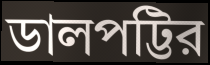
ডালপট্টির